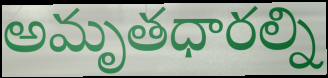
అమృతధారల్ని